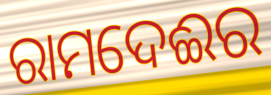
ରାମଦେଈର